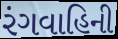
રંગવાહિની